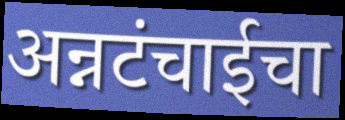
अन्नटंचाईचा